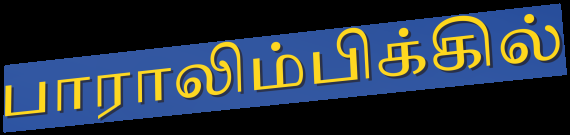
பாராலிம்பிக்கில்